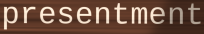
presentment